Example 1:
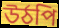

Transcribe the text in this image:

উঠপি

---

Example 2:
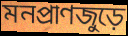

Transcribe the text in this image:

মনপ্রাণজুড়ে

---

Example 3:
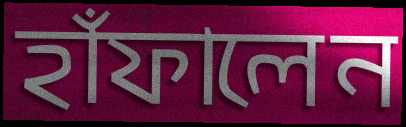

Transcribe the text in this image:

হাঁফালেন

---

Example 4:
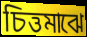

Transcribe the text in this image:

চিত্তমাঝে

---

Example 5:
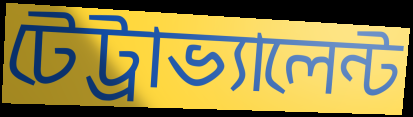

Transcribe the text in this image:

টেট্রাভ্যালেন্ট